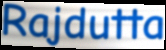
Rajdutta